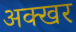
अक्खर